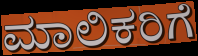
ಮಾಲಿಕರಿಗೆ